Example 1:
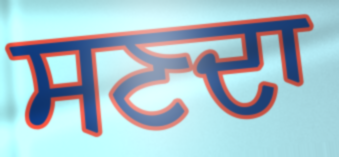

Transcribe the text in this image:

ਸਣਦਾ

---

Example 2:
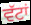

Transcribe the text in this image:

ਵੱਟਾਂ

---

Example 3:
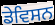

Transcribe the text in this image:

ਡੇਵਿਸਨ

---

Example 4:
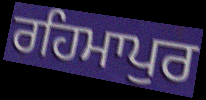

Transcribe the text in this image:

ਰਹਿਮਾਪੁਰ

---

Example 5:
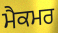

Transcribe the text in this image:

ਮੈਕਮਰ